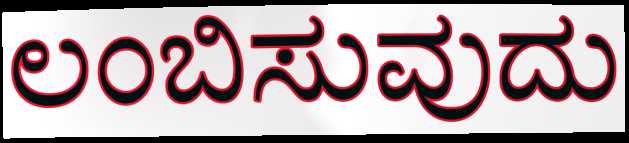
ಲಂಬಿಸುವುದು